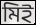
মিই